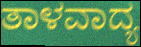
ತಾಳವಾದ್ಯ